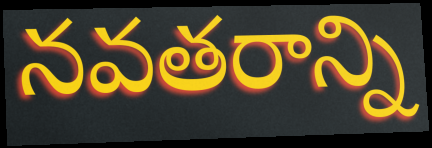
నవతరాన్ని